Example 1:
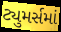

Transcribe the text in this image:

ટ્યુમર્સમાં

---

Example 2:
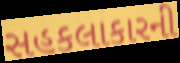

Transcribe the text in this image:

સહકલાકારની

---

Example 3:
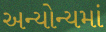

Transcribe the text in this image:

અન્યોન્યમાં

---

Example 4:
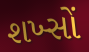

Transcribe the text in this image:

શખ્સોં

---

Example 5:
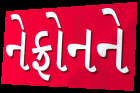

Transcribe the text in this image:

નેફ્રોનને